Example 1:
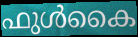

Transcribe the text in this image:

ഫുൾകൈ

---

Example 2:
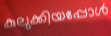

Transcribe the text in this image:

കുലുക്കിയപ്പോൾ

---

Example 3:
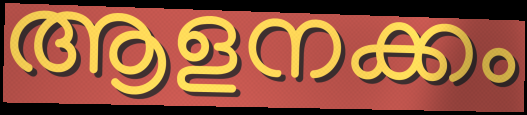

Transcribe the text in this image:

ആളനക്കം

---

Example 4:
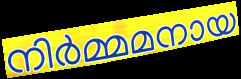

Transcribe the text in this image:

നിർമ്മമനായ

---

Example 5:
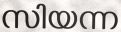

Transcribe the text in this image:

സിയന്ന